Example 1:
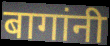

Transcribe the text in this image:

बागांनी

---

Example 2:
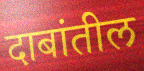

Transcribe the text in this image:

दाबांतील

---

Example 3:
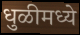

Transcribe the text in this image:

धुळीमध्ये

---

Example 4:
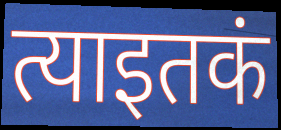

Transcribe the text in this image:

त्याइतकं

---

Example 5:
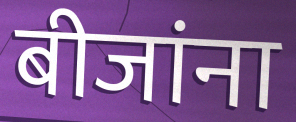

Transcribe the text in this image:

बीजांना